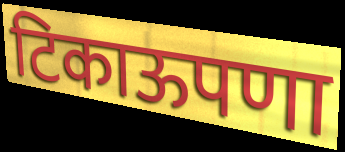
टिकाऊपणा